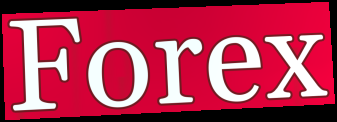
Forex